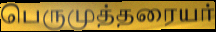
பெருமுத்தரையர்